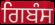
ਗਿਬੰਸ